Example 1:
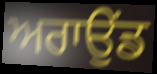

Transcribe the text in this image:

ਅਰਾਉਂਡ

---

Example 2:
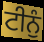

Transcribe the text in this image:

ਟੀਨੁੰ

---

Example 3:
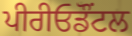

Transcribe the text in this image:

ਪੀਰੀਓਡੌਂਟਲ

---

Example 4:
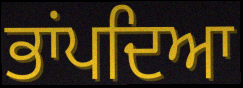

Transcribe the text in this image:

ਭਾਂਪਦਿਆ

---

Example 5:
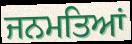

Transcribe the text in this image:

ਜਨਮਤਿਆਂ